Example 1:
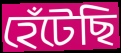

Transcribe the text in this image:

হেঁটেছি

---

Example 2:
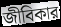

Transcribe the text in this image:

জীবিকার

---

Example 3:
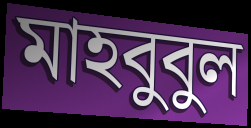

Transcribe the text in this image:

মাহবুবুল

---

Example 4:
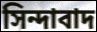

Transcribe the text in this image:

সিন্দাবাদ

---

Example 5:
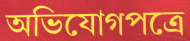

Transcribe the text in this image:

অভিযোগপত্রে